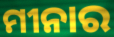
ମୀନାର